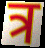
त्र